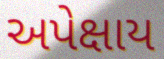
અપેક્ષાય